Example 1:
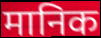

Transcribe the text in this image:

मानिक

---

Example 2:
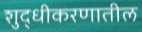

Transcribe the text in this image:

शुद्धीकरणातील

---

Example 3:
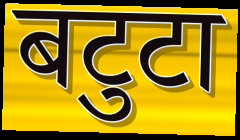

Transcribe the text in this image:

बटुटा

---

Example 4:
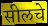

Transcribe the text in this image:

सीलचे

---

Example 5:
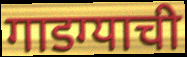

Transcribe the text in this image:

गाडग्याची